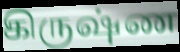
கிருஷ்ண